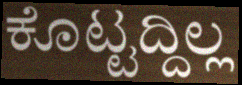
ಕೊಟ್ಟದ್ದಿಲ್ಲ